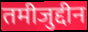
तमीजुद्दीन